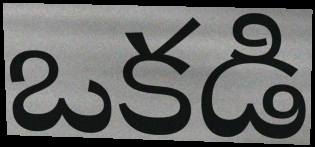
ఒకడి